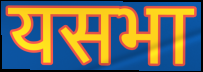
यसभा